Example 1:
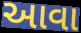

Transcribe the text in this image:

આવા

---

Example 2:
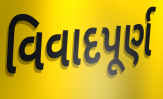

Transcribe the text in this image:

વિવાદપૂર્ણ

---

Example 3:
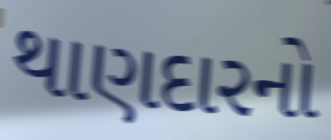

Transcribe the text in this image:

થાણદારનો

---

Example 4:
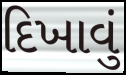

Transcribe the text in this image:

દિખાવું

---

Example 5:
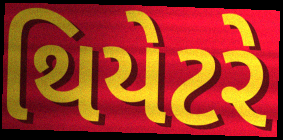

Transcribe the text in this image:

થિયેટરે